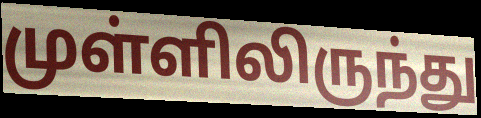
முள்ளிலிருந்து